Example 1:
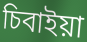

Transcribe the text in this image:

চিবাইয়া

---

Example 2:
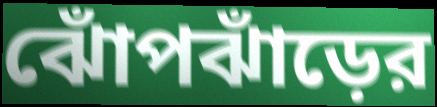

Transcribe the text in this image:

ঝোঁপঝাঁড়ের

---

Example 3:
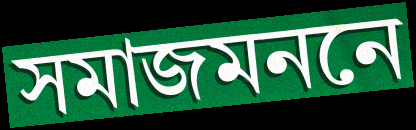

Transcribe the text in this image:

সমাজমননে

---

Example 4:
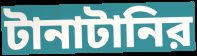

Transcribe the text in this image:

টানাটানির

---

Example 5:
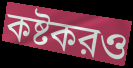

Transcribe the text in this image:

কষ্টকরও